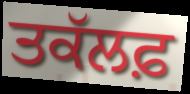
ਤਕੱਲਫ਼